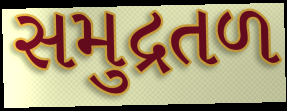
સમુદ્રતળ